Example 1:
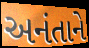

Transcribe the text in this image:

અનંતાને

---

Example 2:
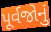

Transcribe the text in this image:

પૂર્વજોનું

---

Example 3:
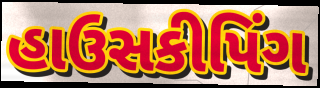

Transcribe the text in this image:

હાઉસકીપિંગ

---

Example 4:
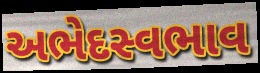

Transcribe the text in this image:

અભેદસ્વભાવ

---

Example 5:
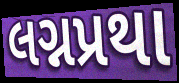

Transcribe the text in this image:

લગ્નપ્રથા